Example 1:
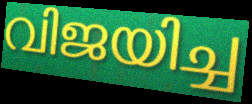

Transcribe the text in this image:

വിജയിച്ച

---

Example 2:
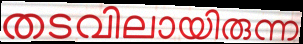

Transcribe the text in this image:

തടവിലായിരുന്ന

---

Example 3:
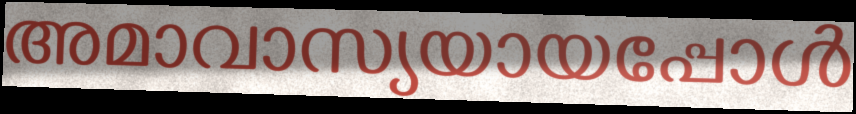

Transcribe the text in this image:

അമാവാസ്യയായപ്പോൾ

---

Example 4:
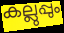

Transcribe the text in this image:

കല്ലുപ്പും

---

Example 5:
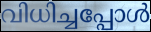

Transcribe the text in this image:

വിധിച്ചപ്പോൾ